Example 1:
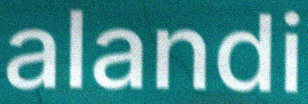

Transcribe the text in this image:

alandi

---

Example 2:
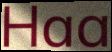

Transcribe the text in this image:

Haa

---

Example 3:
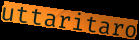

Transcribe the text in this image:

uttaritaro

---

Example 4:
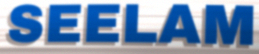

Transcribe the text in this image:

SEELAM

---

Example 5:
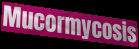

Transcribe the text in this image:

Mucormycosis